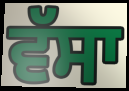
ਵੱਸਾ